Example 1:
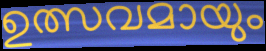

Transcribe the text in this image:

ഉത്സവമായും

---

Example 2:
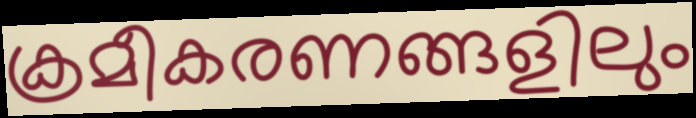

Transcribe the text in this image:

ക്രമീകരണങ്ങളിലും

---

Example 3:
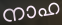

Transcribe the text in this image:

നാഹ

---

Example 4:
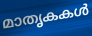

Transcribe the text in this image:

മാതൃകകൾ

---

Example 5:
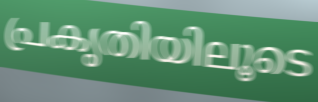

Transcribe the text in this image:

പ്രകൃതിയിലൂടെ